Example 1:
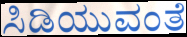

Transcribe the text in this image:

ಸಿಡಿಯುವಂತೆ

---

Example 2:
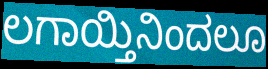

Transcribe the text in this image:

ಲಗಾಯ್ತಿನಿಂದಲೂ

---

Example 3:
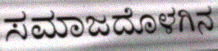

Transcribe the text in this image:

ಸಮಾಜದೊಳಗಿನ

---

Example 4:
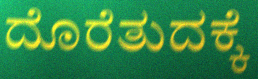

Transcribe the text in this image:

ದೊರೆತುದಕ್ಕೆ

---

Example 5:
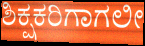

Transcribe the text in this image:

ಶಿಕ್ಷಕರಿಗಾಗಲೀ